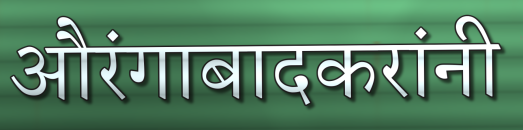
औरंगाबादकरांनी